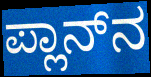
ಪ್ಲಾನ್‌ನ